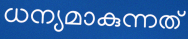
ധന്യമാകുന്നത്